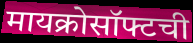
मायक्रोसॉफ्टची